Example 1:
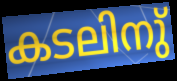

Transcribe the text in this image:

കടലിനു്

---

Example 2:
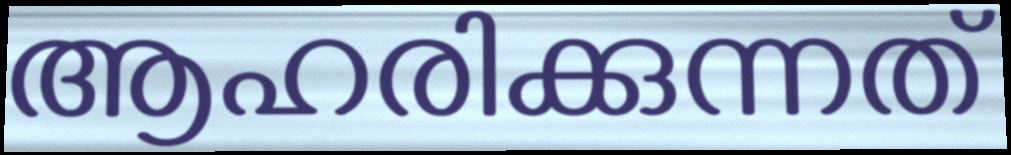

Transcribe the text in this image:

ആഹരിക്കുന്നത്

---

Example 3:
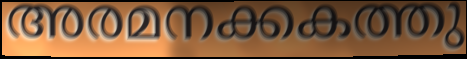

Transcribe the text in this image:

അരമനക്കകത്തു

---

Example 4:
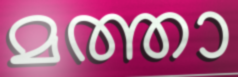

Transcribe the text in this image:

മത്താ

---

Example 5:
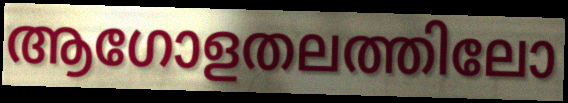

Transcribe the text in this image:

ആഗോളതലത്തിലോ